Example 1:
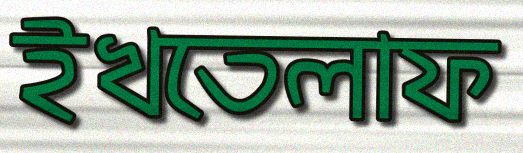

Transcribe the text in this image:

ইখতেলাফ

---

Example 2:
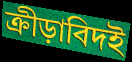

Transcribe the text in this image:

ক্রীড়াবিদই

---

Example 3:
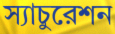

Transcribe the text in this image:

স্যাচুরেশন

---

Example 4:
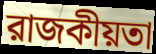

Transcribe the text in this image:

রাজকীয়তা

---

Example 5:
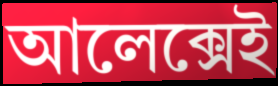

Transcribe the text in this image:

আলেক্সেই